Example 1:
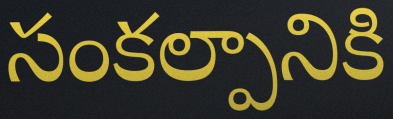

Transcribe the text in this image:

సంకల్పానికి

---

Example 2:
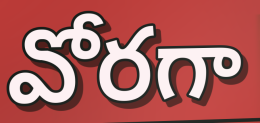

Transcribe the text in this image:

వోరగా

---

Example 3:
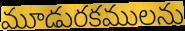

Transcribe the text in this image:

మూడురకములను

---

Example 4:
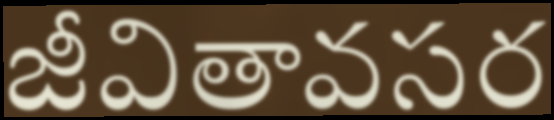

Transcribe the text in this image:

జీవితావసర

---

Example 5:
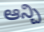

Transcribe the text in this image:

ఆన్చి